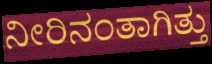
ನೀರಿನಂತಾಗಿತ್ತು